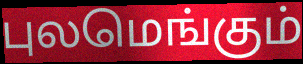
புலமெங்கும்